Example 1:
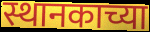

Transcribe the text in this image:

स्थानकाच्या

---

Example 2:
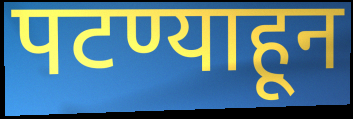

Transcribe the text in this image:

पटण्याहून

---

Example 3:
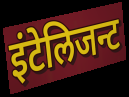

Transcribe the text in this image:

इंटेलिजन्ट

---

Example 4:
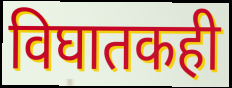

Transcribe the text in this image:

विघातकही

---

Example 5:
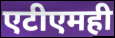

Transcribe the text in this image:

एटीएमही